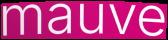
mauve